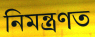
নিমন্ত্ৰণত